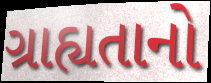
ગ્રાહ્યતાનો